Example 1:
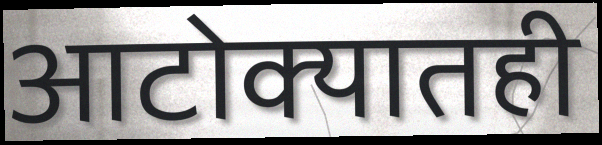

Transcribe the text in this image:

आटोक्यातही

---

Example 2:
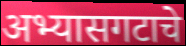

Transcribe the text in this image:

अभ्यासगटाचे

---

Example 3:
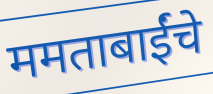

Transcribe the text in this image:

ममताबाईंचे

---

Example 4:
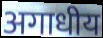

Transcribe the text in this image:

अगाधीय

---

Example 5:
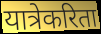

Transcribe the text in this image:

यात्रेकरिता